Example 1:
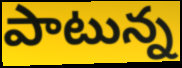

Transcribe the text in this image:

పాటున్న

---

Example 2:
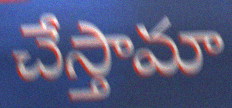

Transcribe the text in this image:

చేస్తామా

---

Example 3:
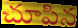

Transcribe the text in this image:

చూపిన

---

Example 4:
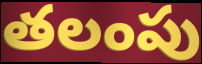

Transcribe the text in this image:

తలంపు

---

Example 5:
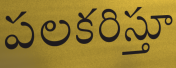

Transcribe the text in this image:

పలకరిస్తూ